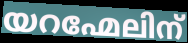
യറഹ്മേലിന്